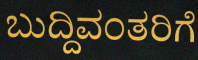
ಬುದ್ದಿವಂತರಿಗೆ